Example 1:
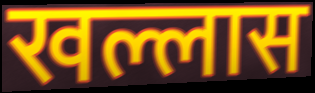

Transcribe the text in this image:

खल्लास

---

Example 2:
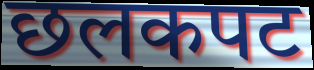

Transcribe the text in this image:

छलकपट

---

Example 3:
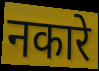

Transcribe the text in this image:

नकारे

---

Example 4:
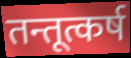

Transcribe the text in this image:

तन्तूत्कर्ष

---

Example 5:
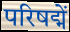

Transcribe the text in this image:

परिषद्में